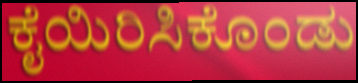
ಕೈಯಿರಿಸಿಕೊಂಡು